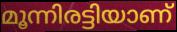
മൂന്നിരട്ടിയാണ്